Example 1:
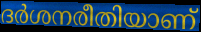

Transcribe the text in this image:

ദർശനരീതിയാണ്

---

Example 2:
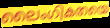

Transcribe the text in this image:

ലൈംഗികതയെ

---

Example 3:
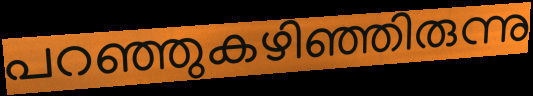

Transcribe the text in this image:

പറഞ്ഞുകഴിഞ്ഞിരുന്നു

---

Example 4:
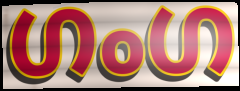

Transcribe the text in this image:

ഗംഗ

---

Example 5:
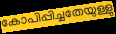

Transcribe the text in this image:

കോപിപ്പിച്ചതേയുള്ളു